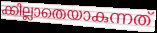
ക്കില്ലാതെയാകുന്നത്